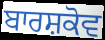
ਬਾਰਸ਼ਕੋਵ